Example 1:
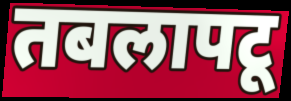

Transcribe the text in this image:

तबलापटू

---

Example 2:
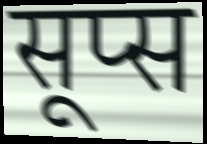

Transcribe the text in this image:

सूप्स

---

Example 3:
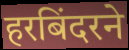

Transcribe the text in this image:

हरबिंदरने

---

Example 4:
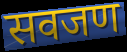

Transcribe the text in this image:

सवजण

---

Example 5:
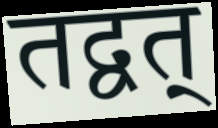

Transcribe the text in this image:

तद्वत्